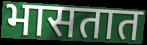
भासतात